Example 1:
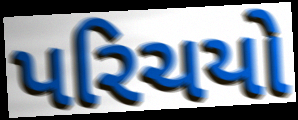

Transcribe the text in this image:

પરિચયો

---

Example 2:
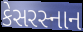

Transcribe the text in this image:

કેસરસ્નાન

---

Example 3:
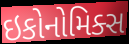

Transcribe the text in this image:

ઇકોનોમિક્સ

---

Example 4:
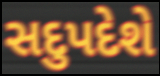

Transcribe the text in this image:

સદુપદેશે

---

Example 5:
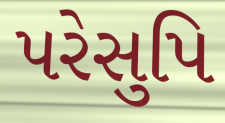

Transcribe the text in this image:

પરેસુપિ